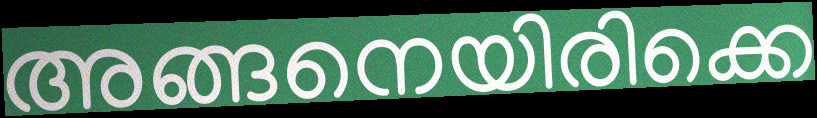
അങ്ങനെയിരിക്കെ